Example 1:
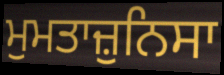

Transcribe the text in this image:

ਮੁਮਤਾਜ਼ੁਨਿਸਾ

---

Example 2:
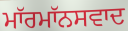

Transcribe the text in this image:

ਮਾੱਰਮਾੱਨਸਵਾਦ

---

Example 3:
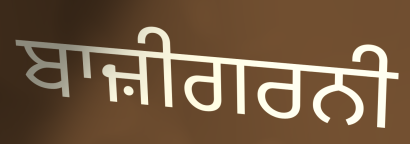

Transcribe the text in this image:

ਬਾਜ਼ੀਗਰਨੀ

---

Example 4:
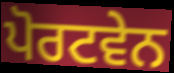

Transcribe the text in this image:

ਪੋਰਟਵੇਨ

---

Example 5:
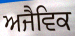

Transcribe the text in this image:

ਅਜੈਵਿਕ